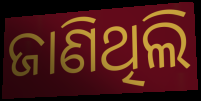
ଜାଣିଥିଲି